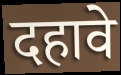
दहावे